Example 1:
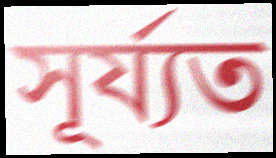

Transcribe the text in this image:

সূৰ্য্যত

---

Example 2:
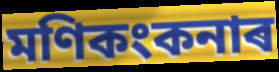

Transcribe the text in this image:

মণিকংকনাৰ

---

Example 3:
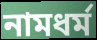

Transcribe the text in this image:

নামধৰ্ম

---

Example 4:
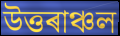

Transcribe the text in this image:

উত্তৰাঞ্চল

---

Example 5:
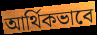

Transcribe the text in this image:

আৰ্থিকভাবে